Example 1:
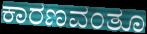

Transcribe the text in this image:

ಕಾರಣವಂತೂ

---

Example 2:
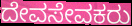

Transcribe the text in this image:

ದೇವಸೇವಕರು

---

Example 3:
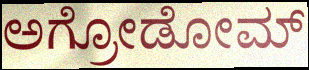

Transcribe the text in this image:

ಅಗ್ರೋಡೋಮ್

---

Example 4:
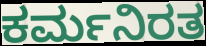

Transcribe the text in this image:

ಕರ್ಮನಿರತ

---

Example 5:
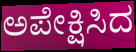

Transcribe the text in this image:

ಅಪೇಕ್ಷಿಸಿದ